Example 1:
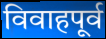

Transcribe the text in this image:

विवाहपूर्व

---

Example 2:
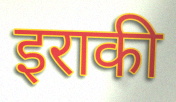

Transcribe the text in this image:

इराकी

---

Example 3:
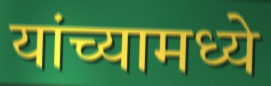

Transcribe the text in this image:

यांच्यामध्ये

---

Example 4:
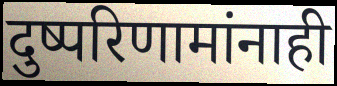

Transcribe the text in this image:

दुष्परिणामांनाही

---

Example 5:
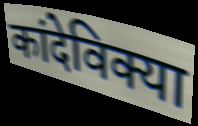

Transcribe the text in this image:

कांदेविक्या